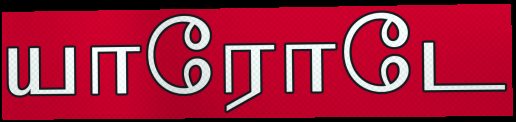
யாரோடே